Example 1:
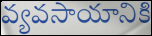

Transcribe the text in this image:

వ్యవసాయానికి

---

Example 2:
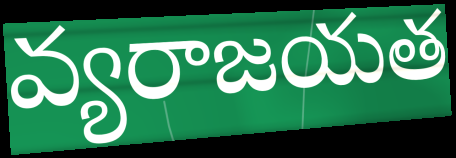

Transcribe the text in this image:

వ్యరాజయత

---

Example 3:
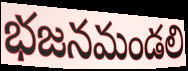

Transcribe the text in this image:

భజనమండలి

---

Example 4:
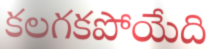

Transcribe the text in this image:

కలగకపోయేది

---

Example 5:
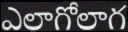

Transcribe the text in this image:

ఎలాగోలాగ